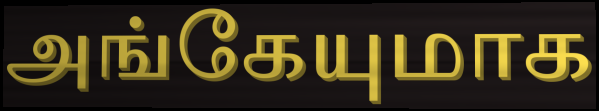
அங்கேயுமாக